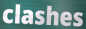
clashes